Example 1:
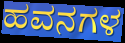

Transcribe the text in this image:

ಹವನಗಳ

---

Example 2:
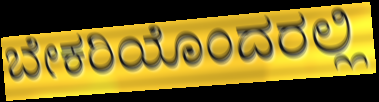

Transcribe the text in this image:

ಬೇಕರಿಯೊಂದರಲ್ಲಿ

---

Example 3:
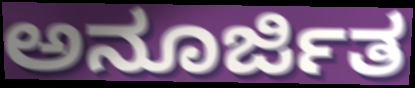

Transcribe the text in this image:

ಅನೂರ್ಜಿತ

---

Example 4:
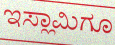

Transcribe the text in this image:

ಇಸ್ಲಾಮಿಗೂ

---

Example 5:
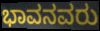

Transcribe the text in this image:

ಭಾವನವರು